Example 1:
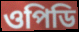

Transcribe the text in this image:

ওপিডি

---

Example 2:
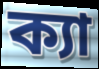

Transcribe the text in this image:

ক্যা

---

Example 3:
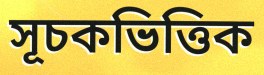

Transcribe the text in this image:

সূচকভিত্তিক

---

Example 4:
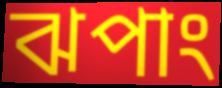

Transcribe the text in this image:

ঝপাং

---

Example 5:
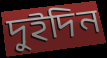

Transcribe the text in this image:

দুইদিন